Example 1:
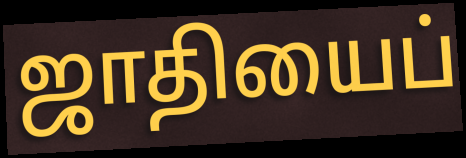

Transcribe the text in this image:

ஜாதியைப்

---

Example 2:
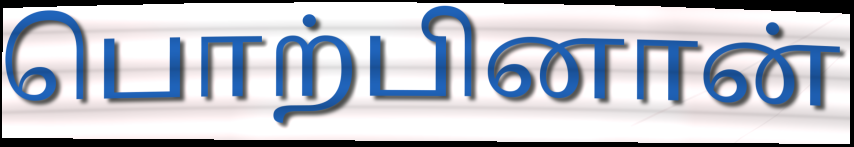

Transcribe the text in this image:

பொற்பினான்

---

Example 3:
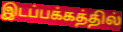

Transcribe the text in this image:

இடப்பக்கத்தில்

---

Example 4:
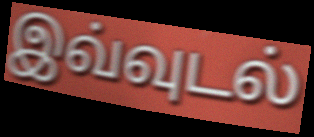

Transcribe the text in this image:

இவ்வுடல்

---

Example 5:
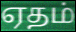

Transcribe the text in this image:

ஏதம்